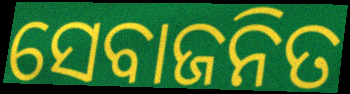
ସେବାଜନିତ